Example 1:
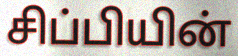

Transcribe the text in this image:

சிப்பியின்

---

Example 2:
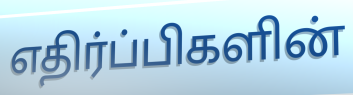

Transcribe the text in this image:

எதிர்ப்பிகளின்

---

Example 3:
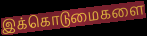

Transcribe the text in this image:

இக்கொடுமைகளை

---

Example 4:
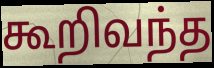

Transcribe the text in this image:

கூறிவந்த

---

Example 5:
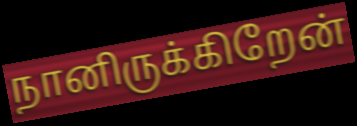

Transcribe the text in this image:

நானிருக்கிறேன்